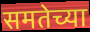
समतेच्या